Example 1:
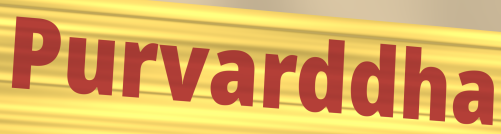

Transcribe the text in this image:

Purvarddha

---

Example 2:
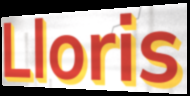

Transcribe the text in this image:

Lloris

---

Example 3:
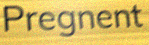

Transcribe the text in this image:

Pregnent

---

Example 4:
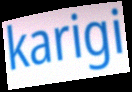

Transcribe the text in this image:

karigi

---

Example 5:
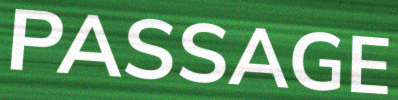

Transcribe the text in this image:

PASSAGE